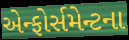
એન્ફોર્સમેન્ટના